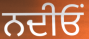
ਨਦੀਓਂ